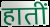
हातीं